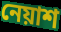
নেয়াশ